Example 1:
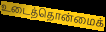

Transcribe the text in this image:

உடைத்தொன்மைக்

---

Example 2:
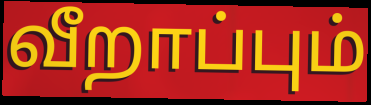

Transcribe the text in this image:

வீறாப்பும்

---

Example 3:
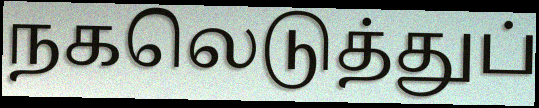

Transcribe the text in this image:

நகலெடுத்துப்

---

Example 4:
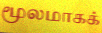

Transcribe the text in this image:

மூலமாகக்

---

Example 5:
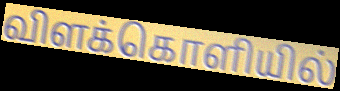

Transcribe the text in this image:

விளக்கொளியில்